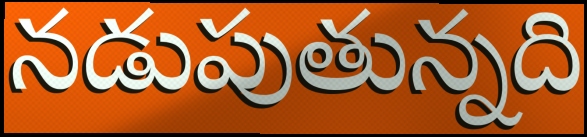
నడుపుతున్నది